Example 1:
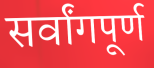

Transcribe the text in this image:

सर्वांगपूर्ण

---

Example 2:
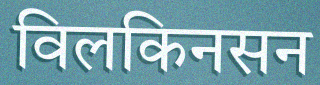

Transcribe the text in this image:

विलकिनसन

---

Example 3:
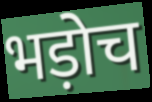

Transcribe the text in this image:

भड़ोच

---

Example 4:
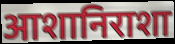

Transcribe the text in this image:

आशानिराशा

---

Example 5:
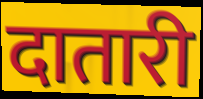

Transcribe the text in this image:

दातारी